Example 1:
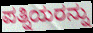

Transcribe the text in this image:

ಪತ್ನಿಯರನ್ನು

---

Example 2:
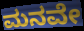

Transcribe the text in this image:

ಮನವೇ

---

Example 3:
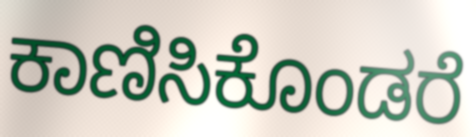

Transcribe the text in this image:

ಕಾಣಿಸಿಕೊಂಡರೆ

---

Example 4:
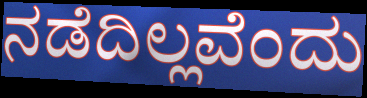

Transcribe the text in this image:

ನಡೆದಿಲ್ಲವೆಂದು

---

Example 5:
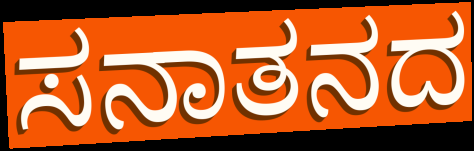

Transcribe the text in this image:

ಸನಾತನದ